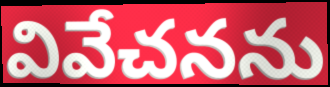
వివేచనను